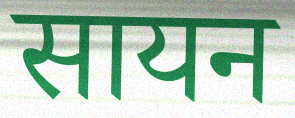
सायन